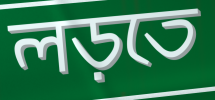
লড়তে